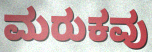
ಮರುಕವು